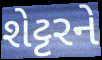
શેટ્ટરને